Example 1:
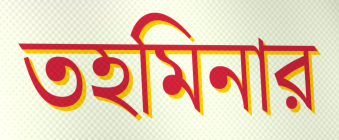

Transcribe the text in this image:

তহমিনার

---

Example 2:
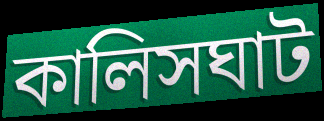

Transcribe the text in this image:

কালিসঘাট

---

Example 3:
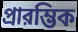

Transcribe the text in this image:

প্রারম্ভিক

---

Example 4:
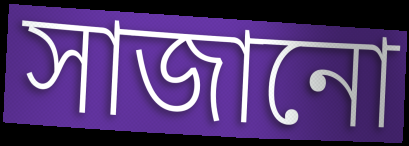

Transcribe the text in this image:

সাজানো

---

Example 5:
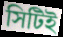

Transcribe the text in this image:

সিটিই